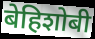
बेहिशोबी